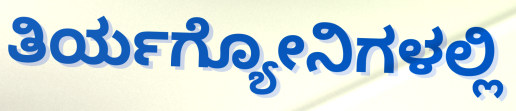
ತಿರ್ಯಗ್ಯೋನಿಗಳಲ್ಲಿ